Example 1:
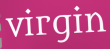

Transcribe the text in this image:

virgin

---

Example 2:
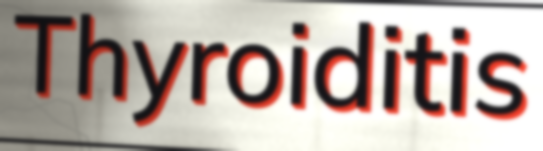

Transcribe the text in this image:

Thyroiditis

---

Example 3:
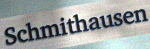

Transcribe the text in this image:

Schmithausen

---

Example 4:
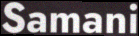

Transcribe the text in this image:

Samani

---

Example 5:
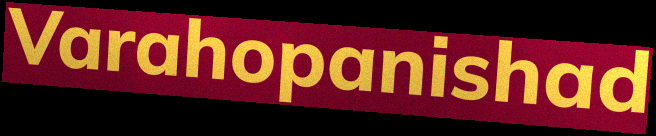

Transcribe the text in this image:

Varahopanishad